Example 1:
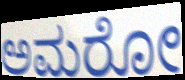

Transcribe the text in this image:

ಅಮರೋ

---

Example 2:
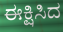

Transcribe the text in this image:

ಈಕ್ಷಿಸಿದ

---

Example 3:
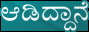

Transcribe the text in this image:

ಆಡಿದ್ದಾನೆ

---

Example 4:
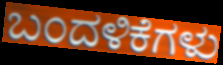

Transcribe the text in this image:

ಬಂದಳಿಕೆಗಳು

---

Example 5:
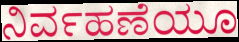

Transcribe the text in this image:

ನಿರ್ವಹಣೆಯೂ